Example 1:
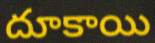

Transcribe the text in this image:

దూకాయి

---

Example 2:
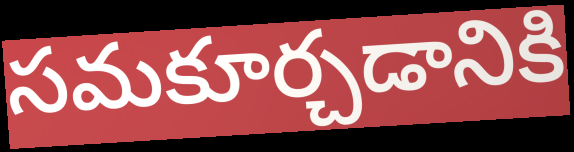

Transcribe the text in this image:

సమకూర్చడానికి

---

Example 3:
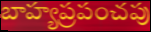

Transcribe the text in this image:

బాహ్యప్రపంచపు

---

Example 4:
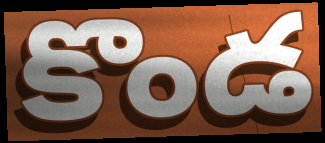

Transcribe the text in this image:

కొండ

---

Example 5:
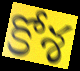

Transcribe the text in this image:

కోశ